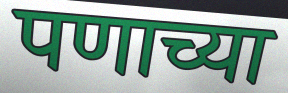
पणाच्या